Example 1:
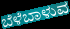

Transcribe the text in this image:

ಬೆಳೆಬಾಳುವ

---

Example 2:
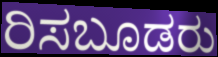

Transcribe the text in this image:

ರಿಸಬೂಡರು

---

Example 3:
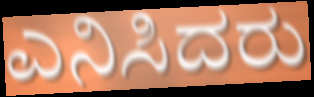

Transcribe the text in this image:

ಎನಿಸಿದರು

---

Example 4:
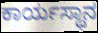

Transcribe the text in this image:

ಕಾರ್ಯಸ್ಥಾನ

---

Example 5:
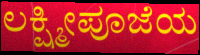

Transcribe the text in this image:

ಲಕ್ಷ್ಮೀಪೂಜೆಯ